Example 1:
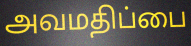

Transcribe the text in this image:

அவமதிப்பை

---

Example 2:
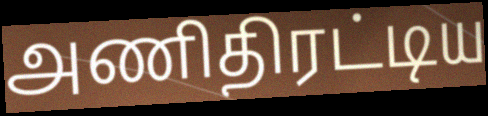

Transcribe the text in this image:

அணிதிரட்டிய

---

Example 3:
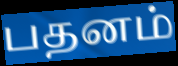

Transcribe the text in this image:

பதனம்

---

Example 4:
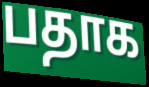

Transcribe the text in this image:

பதாக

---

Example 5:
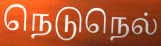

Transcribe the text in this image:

நெடுநெல்